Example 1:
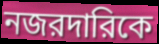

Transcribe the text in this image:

নজরদারিকে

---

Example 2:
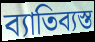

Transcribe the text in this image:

ব্যাতিব্যস্ত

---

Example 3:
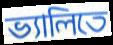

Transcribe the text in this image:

ভ্যালিতে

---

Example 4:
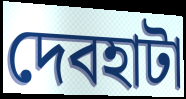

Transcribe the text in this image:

দেবহাটা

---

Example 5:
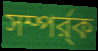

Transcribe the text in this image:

সম্পর্র্ক